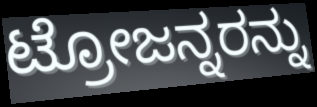
ಟ್ರೋಜನ್ನರನ್ನು